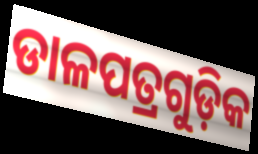
ଡାଳପତ୍ରଗୁଡ଼ିକ